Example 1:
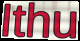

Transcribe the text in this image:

Ithu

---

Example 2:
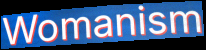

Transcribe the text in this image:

Womanism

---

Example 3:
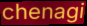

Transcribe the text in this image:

chenagi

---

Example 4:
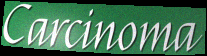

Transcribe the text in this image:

Carcinoma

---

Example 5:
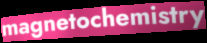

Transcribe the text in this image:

magnetochemistry